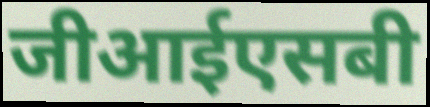
जीआईएसबी